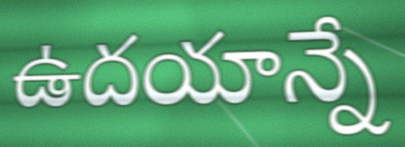
ఉదయాన్నే